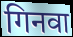
गिनवा